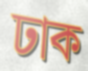
ঢাক